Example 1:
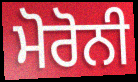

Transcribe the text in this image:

ਮੋਰੋਨੀ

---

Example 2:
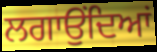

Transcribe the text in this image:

ਲਗਾਉੰਦਿਆਂ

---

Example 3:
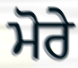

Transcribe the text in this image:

ਮੋਰੇ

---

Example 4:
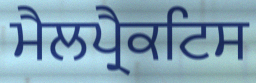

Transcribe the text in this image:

ਮੈਲਪ੍ਰੈਕਟਿਸ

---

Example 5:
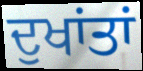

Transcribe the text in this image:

ਦੁਖਾਂਤਾਂ